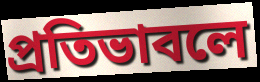
প্রতিভাবলে